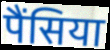
पैंसिया